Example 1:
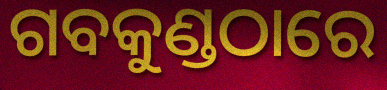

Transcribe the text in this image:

ଗବକୁଣ୍ଡଠାରେ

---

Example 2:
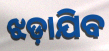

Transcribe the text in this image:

ଝଡ଼ାଯିବ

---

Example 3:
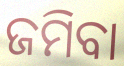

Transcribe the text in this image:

ଜମିବା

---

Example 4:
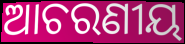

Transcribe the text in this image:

ଆଚରଣୀୟ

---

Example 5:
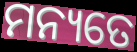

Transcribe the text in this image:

ମନ୍ୟତେ